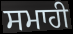
ਸਮਾਹੀ